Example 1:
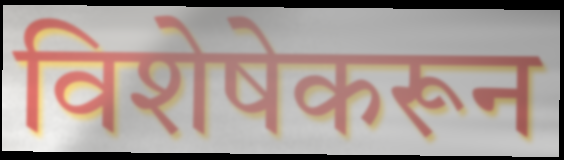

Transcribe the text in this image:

विशेषेकरून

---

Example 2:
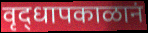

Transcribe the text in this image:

वृद्धापकाळानं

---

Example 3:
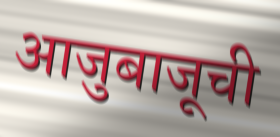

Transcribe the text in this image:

आजुबाजूची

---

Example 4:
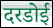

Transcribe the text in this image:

दरडोई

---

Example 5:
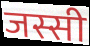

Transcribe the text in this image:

जस्सी